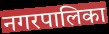
नगरपालिका